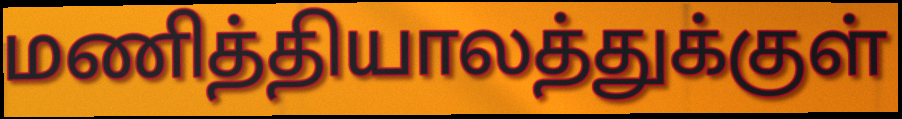
மணித்தியாலத்துக்குள்